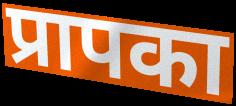
प्रापका